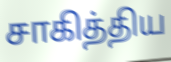
சாகித்திய